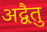
अद्वैतु